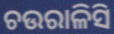
ଚଉରାଳିସି